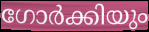
ഗോർക്കിയും